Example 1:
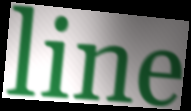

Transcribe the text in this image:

line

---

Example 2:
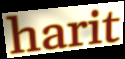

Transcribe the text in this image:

harit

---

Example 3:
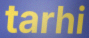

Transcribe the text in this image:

tarhi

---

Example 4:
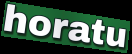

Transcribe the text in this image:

horatu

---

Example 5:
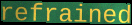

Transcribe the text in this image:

refrained